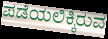
ಪಡೆಯಲಿಕ್ಕಿರುವ